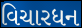
વિચારધન